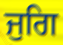
ਜੁਗਿ